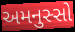
અમનુસ્સો